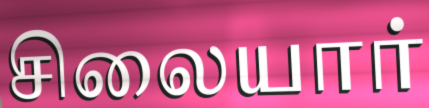
சிலையார்